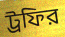
ট্রফির